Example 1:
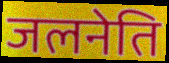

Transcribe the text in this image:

जलनेति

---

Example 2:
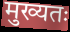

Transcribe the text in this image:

मुख्यतः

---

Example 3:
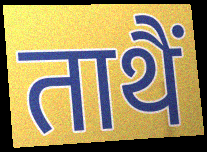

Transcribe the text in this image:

ताथैं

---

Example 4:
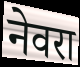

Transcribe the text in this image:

नेवरा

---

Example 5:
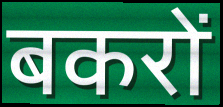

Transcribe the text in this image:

बकरों